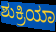
ಶುಕ್ರಿಯಾ